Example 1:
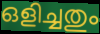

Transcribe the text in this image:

ഒളിച്ചതും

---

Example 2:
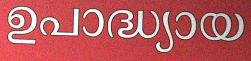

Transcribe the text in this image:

ഉപാദ്ധ്യായ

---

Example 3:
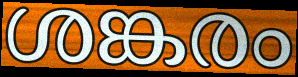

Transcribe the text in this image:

ശങ്കരം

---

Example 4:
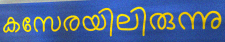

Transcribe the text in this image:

കസേരയിലിരുന്നു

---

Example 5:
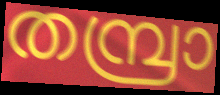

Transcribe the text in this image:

തമ്പ്രാ